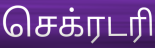
செக்ரடரி